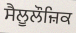
ਸੈਲੂਲੌਜ਼ਿਕ